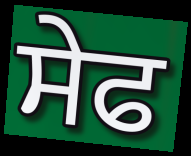
ਸੇਫ